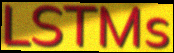
LSTMs